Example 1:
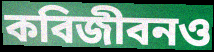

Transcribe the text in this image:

কবিজীবনও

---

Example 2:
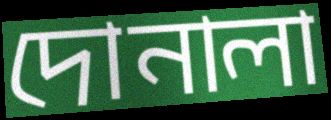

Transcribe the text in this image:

দোনালা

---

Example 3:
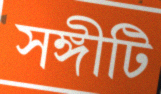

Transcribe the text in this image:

সঙ্গীটি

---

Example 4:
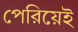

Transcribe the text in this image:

পেরিয়েই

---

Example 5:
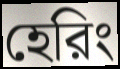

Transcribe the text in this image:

হেরিং